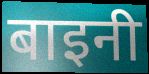
बाइनी